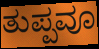
ತುಪ್ಪವೂ